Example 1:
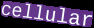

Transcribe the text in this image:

cellular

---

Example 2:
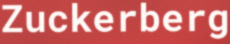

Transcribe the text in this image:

Zuckerberg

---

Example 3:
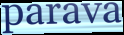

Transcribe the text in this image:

parava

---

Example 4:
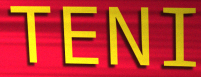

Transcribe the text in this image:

TENI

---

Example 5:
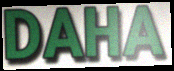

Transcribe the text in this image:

DAHA